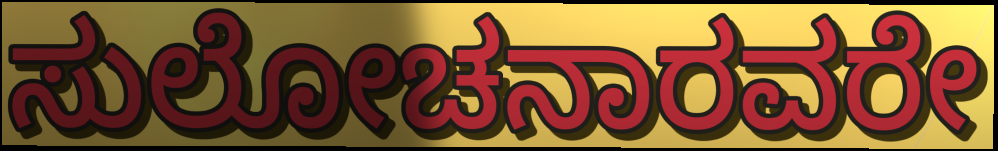
ಸುಲೋಚನಾರವರೇ